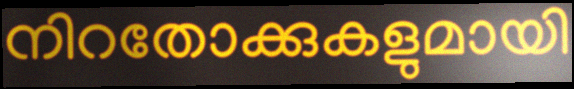
നിറതോക്കുകളുമായി